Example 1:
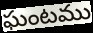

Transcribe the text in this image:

ఘంటము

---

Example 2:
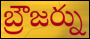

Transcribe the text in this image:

బ్రౌజర్ను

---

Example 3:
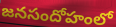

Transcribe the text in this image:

జనసందోహంలో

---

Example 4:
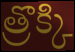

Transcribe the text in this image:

త్రొక్కి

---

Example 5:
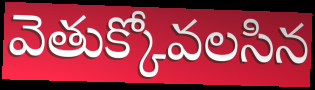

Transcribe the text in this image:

వెతుక్కోవలసిన